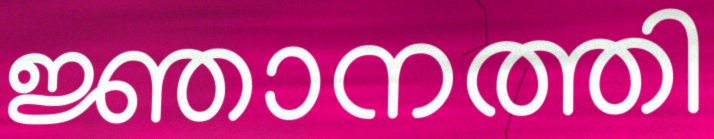
ജ്ഞാനത്തി